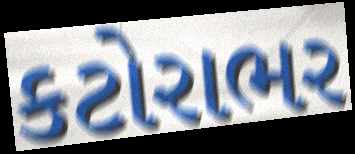
કટોરાભર